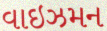
વાઇઝમન